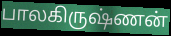
பாலகிருஷ்ணன்